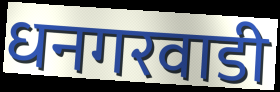
धनगरवाडी